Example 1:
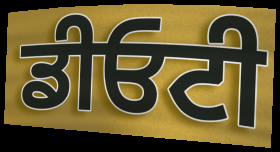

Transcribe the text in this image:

ਡੀਓਟੀ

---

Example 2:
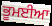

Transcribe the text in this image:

ਭੂਮਈਆ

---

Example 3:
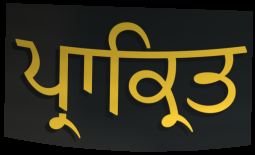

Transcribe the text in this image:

ਪ੍ਰਾਕ੍ਰਿਤ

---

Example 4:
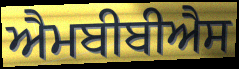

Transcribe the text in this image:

ਐਮਬੀਬੀਐਸ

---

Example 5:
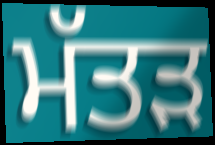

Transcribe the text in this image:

ਮੱਤੜ